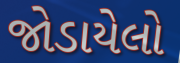
જોડાયેલો